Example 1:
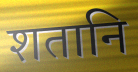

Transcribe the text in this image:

शतानि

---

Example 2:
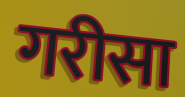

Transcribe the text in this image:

गरीसा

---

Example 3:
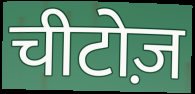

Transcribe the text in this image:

चीटोज़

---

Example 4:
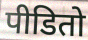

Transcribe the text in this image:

पीडितो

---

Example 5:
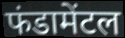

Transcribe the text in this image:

फंडामेंटल